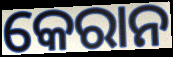
କେରାନ